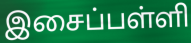
இசைப்பள்ளி